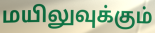
மயிலுவுக்கும்